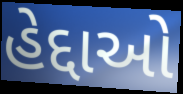
હેદ્દાઓ